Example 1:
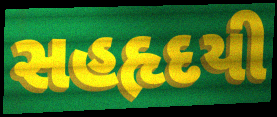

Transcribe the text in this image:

સહહૃદયી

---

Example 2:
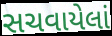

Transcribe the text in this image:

સચવાયેલાં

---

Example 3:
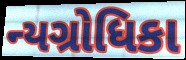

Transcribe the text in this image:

ન્યગ્રોધિકા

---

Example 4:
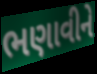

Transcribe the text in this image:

ભણાવીને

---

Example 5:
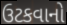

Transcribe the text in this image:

ઉટકવાનો